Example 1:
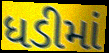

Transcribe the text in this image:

ધડીમાં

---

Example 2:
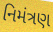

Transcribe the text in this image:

નિમંત્રણ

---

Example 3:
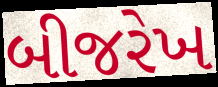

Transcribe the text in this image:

બીજરેખ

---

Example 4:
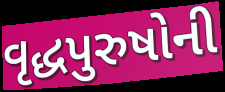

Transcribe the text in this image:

વૃદ્ધપુરુષોની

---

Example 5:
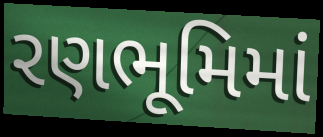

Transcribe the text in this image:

રણભૂમિમાં